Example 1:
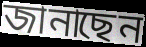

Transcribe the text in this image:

জানাছেন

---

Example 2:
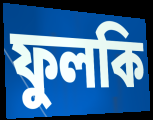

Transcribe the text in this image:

ফুলকি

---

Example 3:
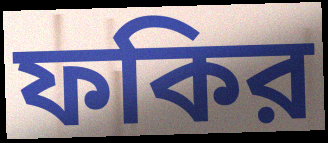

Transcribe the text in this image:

ফকির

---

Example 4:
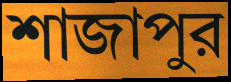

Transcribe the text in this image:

শাজাপুর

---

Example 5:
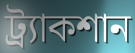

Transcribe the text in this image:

ট্র্যাকশান